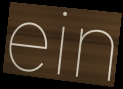
ein